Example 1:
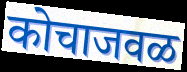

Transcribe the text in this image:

कोचाजवळ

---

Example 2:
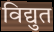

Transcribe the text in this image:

विद्युत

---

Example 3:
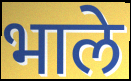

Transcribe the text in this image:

भाले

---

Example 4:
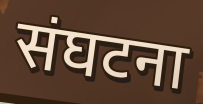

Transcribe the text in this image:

संघटना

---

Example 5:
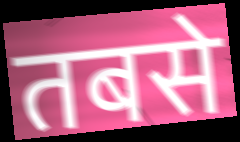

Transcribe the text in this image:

तबसे